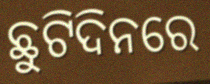
ଛୁଟିଦିନରେ